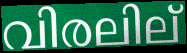
വിരലില്